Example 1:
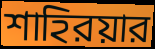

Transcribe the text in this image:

শাহিরয়ার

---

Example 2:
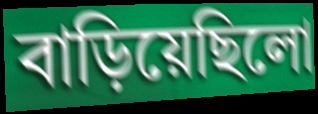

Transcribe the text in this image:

বাড়িয়েছিলো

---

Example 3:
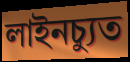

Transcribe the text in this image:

লাইনচ্যুত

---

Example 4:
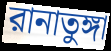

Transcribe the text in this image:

রানাতুঙ্গা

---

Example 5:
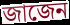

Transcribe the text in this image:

জাজেন